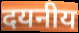
दयनीय